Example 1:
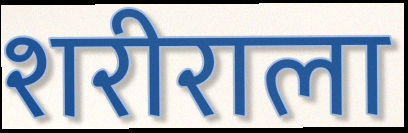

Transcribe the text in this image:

शरीराला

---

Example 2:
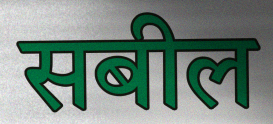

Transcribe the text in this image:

सबील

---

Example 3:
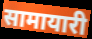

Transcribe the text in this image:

सामायारी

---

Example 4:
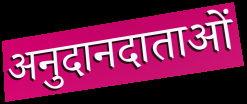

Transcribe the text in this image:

अनुदानदाताओं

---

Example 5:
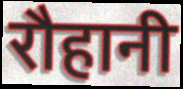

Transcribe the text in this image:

रौहानी